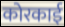
कोरकाई